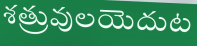
శత్రువులయెదుట